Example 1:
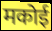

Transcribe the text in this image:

मकोई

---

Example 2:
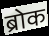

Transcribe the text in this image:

ब्रोक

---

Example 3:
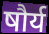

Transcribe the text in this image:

षौर्य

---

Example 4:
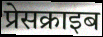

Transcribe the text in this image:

प्रेसक्राइब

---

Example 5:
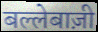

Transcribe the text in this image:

बल्‍लेबाज़ी